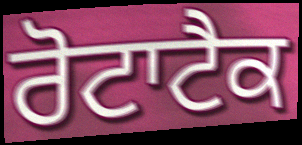
ਰੋਟਾਟੈਕ